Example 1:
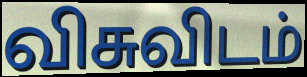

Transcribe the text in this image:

விசுவிடம்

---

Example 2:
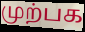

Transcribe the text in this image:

முற்பக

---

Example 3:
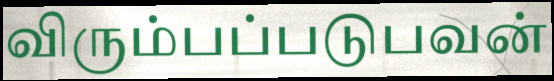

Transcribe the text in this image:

விரும்பப்படுபவன்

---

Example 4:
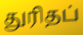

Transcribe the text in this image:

துரிதப்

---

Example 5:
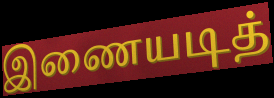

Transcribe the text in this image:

இணையடித்